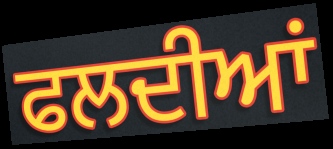
ਫਲਦੀਆਂ